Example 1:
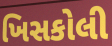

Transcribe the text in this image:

ખિસકોલી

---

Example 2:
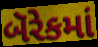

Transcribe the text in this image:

બૅરેકમાં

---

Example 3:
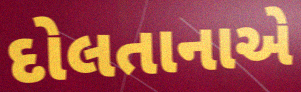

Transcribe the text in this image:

દોલતાનાએ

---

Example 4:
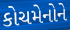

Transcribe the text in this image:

કોચમેનોને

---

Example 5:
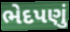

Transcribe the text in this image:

ભેદપણું